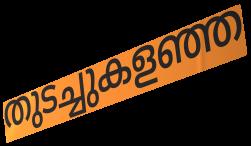
തുടച്ചുകളഞ്ഞ